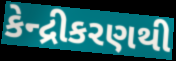
કેન્દ્રીકરણથી